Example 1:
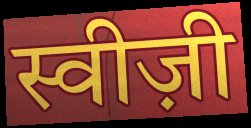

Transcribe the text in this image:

स्वीज़ी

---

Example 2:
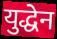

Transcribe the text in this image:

युद्धेन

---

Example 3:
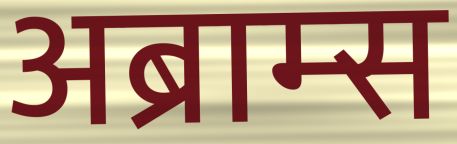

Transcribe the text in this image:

अब्राम्स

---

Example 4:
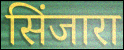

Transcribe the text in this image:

सिंजारा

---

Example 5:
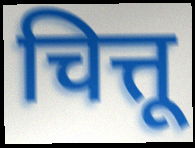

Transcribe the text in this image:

चित्तू